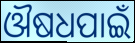
ଔଷଧପାଇଁ